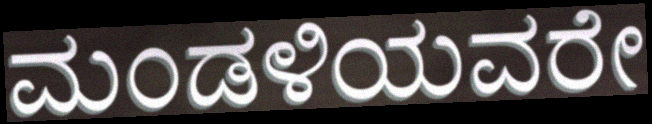
ಮಂಡಳಿಯವರೇ